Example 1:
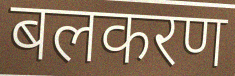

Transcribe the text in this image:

बलकरण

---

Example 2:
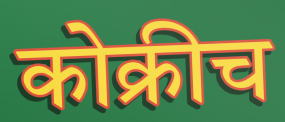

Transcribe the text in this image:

कोक्रीच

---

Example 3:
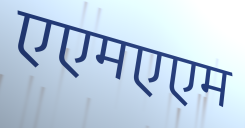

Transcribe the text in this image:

एएमएएम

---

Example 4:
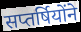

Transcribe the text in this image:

सप्तर्षियोंने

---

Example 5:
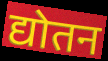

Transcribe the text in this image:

द्योतन